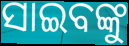
ସାଇବଙ୍କୁ